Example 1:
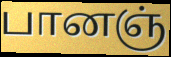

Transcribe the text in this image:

பானஞ்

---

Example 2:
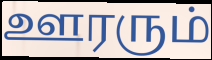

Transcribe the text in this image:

ஊரரும்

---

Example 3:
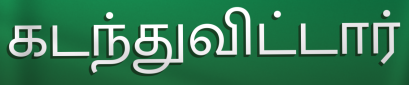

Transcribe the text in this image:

கடந்துவிட்டார்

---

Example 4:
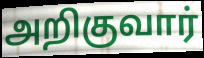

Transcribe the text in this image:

அறிகுவார்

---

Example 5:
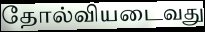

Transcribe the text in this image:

தோல்வியடைவது